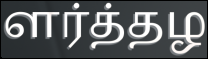
ளர்த்தழ